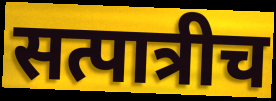
सत्पात्रीच